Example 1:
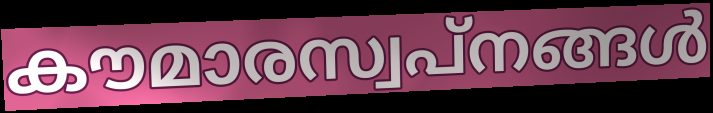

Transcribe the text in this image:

കൗമാരസ്വപ്നങ്ങൾ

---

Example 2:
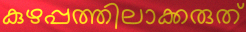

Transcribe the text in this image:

കുഴപ്പത്തിലാക്കരുത്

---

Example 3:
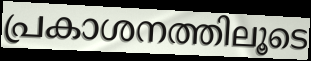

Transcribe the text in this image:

പ്രകാശനത്തിലൂടെ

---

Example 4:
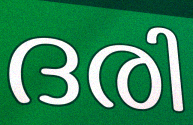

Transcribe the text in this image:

ദരി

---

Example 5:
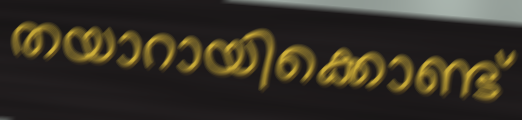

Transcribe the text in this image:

തയാറായിക്കൊണ്ട്